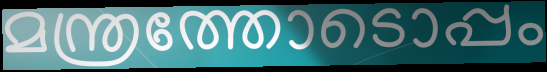
മന്ത്രത്തോടൊപ്പം